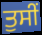
ਤੁਸੀਂ